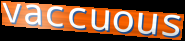
vaccuous